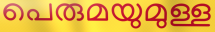
പെരുമയുമുള്ള